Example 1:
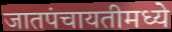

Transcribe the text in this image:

जातपंचायतीमध्ये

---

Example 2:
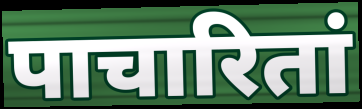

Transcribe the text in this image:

पाचारितां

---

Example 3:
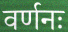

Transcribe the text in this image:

वर्णनः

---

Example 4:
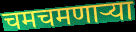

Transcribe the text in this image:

चमचमणाऱ्या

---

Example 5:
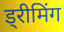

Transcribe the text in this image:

ड्रीमिंग